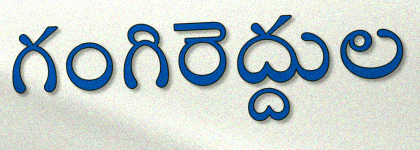
గంగిరెద్దుల